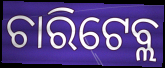
ଚାରିଟେବ୍ଲ